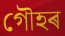
গৌহৰ